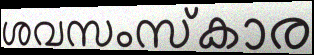
ശവസംസ്കാര